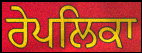
ਰੇਪਲਿਕਾ